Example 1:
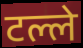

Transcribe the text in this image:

टल्ले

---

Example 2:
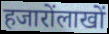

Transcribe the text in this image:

हजारोंलाखों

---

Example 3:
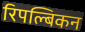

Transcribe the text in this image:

रिपल्बिकन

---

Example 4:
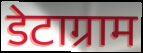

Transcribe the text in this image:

डेटाग्राम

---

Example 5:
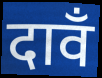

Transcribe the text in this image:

दावँ